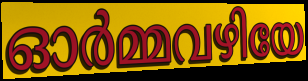
ഓർമ്മവഴിയേ